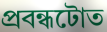
প্ৰবন্ধটোত